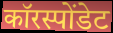
कॉरस्पोंडेट